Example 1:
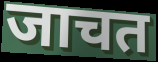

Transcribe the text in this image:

जाचत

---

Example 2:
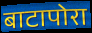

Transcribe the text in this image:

बाटापोरा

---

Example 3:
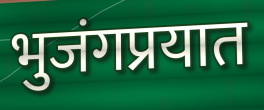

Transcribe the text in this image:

भुजंगप्रयात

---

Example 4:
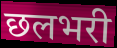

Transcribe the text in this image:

छलभरी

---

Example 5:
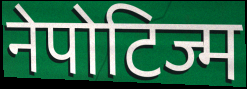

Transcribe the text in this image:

नेपोटिज्‍म